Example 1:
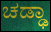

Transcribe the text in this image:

ಚಡ್ಢಾ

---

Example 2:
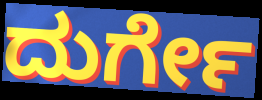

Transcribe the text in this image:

ದುರ್ಗೇ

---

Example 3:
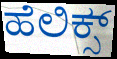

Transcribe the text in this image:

ಹೆಲಿಕ್ಸ್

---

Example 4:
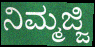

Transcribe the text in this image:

ನಿಮ್ಮಜ್ಜಿ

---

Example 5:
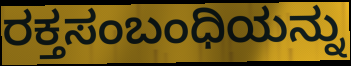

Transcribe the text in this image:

ರಕ್ತಸಂಬಂಧಿಯನ್ನು